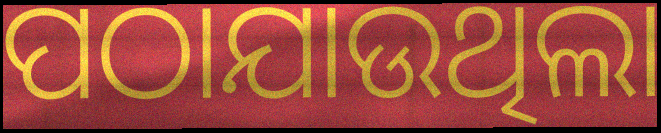
ପଠାଯାଉଥିଲା